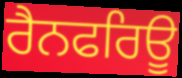
ਰੈਨਫਰਿਊ